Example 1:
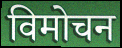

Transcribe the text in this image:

विमोचन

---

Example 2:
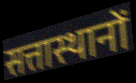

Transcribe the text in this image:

सत्तास्थानों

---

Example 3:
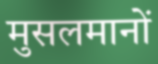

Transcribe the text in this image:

मुसलमानों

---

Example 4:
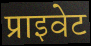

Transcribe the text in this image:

प्राइवेट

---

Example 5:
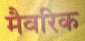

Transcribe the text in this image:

मैवरिक